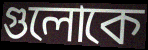
গুলোকে